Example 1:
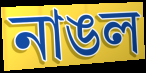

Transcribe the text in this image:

নাঙল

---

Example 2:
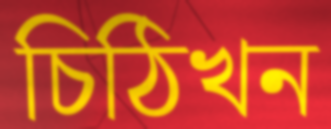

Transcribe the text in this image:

চিঠিখন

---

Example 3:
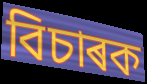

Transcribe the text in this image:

বিচাৰক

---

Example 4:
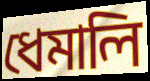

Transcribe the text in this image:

ধেমালি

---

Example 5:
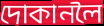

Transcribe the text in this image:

দোকানলৈ